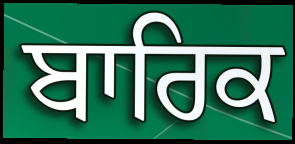
ਬਾਰਿਕ